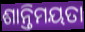
ଶାନ୍ତିମୟତା